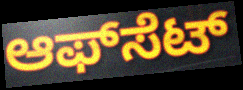
ಆಫ್‍ಸೆಟ್